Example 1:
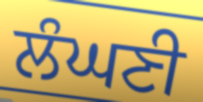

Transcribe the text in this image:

ਲੰਘਣੀ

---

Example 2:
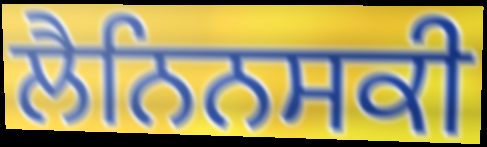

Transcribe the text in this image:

ਲੈਨਿਨਸਕੀ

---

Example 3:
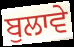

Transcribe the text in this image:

ਬੁਲਾਵੇ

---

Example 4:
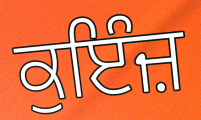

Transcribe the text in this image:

ਕੁਇੰਜ਼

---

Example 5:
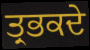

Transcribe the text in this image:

ਤ੍ਰਭਕਦੇ